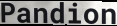
Pandion